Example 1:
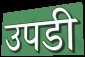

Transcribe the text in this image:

उपडी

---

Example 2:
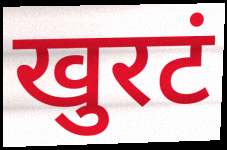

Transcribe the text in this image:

खुरटं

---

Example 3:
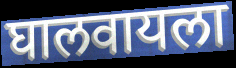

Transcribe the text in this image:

घालवायला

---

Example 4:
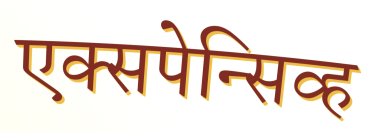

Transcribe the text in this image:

एक्सपेन्सिव्ह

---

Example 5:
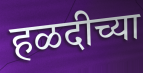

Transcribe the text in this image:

हळदीच्या